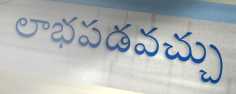
లాభపడవచ్చు